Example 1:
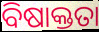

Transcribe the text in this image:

ବିଷାକ୍ତତା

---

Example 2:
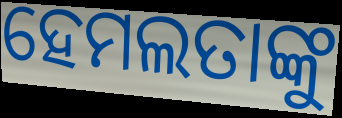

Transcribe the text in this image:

ହେମଲତାଙ୍କୁ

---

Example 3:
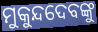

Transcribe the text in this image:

ମୁକୁନ୍ଦଦେବଙ୍କୁ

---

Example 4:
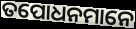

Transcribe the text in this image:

ତପୋଧନମାନେ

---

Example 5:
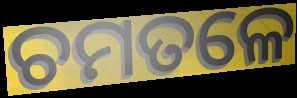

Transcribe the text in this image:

ଚମତଳେ